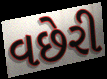
વછેરી